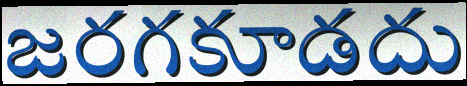
జరగకూడదు